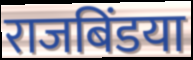
राजबिंडया